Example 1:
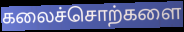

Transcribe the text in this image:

கலைச்சொற்களை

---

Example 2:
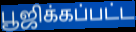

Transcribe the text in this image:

பூஜிக்கப்பட்ட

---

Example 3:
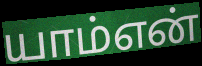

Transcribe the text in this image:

யாம்என்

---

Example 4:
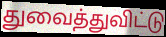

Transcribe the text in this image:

துவைத்துவிட்டு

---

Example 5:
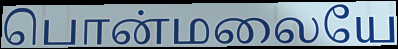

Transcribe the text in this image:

பொன்மலையே